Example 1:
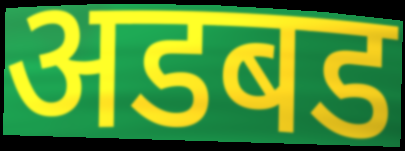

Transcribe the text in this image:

अडबड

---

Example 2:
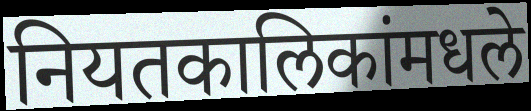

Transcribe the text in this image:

नियतकालिकांमधले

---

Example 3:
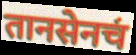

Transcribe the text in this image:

तानसेनचं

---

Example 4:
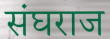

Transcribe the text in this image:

संघराज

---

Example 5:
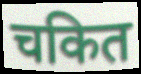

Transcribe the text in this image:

चकित